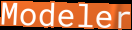
Modeler